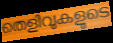
തെളിവുകളുടെ